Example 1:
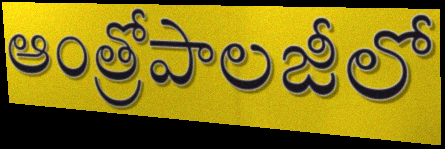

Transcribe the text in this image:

ఆంత్రోపాలజీలో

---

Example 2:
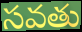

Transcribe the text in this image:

సవతు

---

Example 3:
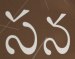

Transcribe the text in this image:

సన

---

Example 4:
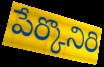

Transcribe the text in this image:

పేర్కొనిరి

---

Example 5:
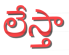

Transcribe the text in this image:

లేస్తా